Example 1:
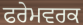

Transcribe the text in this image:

ਫਰੇਮਵਰਕ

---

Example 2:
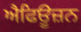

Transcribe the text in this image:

ਐਫਿਊਜ਼ਨ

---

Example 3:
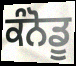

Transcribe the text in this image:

ਕੰਨੋਡੂ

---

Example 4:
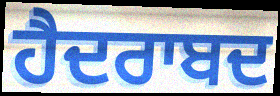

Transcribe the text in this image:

ਹੈਦਰਾਬਦ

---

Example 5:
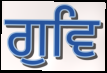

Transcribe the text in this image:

ਗੁਵਿ